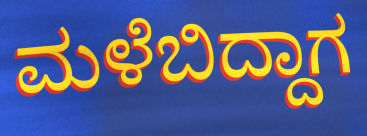
ಮಳೆಬಿದ್ದಾಗ